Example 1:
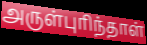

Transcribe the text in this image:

அருள்புரிந்தாள்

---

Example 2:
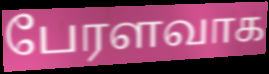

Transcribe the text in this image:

பேரளவாக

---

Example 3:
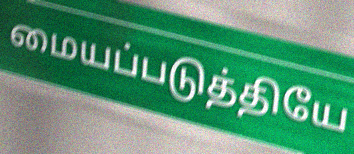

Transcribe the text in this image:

மையப்படுத்தியே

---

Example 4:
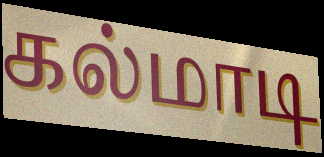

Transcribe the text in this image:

கல்மாடி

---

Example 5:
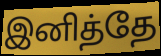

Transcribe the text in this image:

இனித்தே